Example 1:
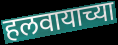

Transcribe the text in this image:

हलवायाच्या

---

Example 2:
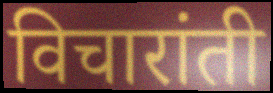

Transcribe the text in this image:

विचारांती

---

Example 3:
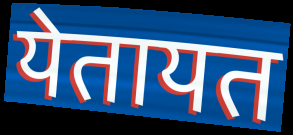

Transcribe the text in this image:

येतायत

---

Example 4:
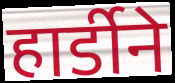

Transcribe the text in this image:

हार्डीने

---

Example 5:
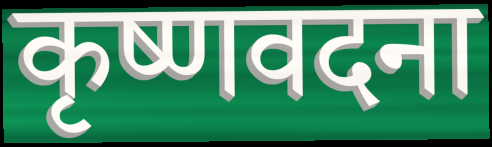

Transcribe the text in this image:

कृष्णवदना